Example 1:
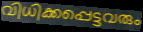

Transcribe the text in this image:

വിധിക്കപ്പെട്ടവരും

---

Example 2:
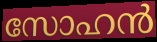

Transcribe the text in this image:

സോഹൻ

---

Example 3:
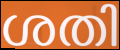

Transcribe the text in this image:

ശതി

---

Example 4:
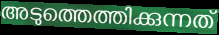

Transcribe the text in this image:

അടുത്തെത്തിക്കുന്നത്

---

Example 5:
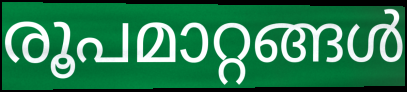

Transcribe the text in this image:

രൂപമാറ്റങ്ങൾ